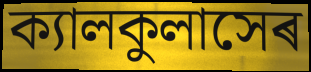
ক্যালকুলাসেৰ